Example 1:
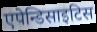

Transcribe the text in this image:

एपेन्डिसाइटिस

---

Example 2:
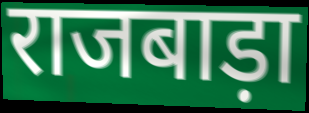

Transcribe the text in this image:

राजबाड़ा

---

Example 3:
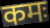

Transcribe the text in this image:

कमः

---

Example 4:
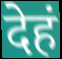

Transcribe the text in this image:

देहं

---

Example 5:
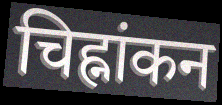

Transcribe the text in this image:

चिह्नांकन